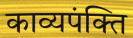
काव्यपंक्ति